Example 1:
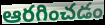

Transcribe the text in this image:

ఆరగించడం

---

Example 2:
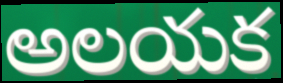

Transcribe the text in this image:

అలయక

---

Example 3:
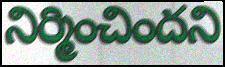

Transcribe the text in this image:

నిర్మించిందని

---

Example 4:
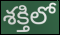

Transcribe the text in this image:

శక్తిలో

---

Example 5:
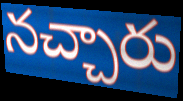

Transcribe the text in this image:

నచ్చారు